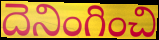
దెనింగించి